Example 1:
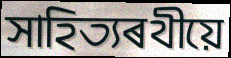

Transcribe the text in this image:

সাহিত্যৰথীয়ে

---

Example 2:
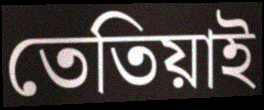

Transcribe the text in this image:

তেতিয়াই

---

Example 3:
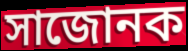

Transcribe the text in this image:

সাজোনক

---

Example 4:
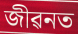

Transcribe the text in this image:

জীৱনত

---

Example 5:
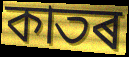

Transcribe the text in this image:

কাতৰ